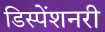
डिस्पेंशनरी